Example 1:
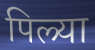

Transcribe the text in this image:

पिल्या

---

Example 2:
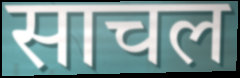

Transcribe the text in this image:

साचल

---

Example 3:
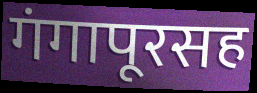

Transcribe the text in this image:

गंगापूरसह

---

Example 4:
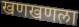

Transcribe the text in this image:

खणखणला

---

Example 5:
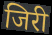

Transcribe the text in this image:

जिरी